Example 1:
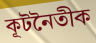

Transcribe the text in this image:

কূটনৈতীক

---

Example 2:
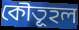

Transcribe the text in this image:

কৌতূহল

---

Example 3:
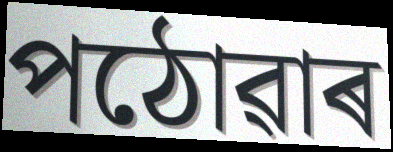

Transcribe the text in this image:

পঠোৱাৰ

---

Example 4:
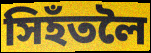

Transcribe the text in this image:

সিহঁতলৈ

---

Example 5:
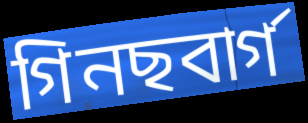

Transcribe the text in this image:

গিনছবাৰ্গ